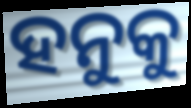
ହନୁକୁ